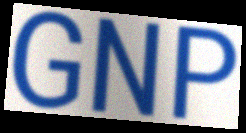
GNP